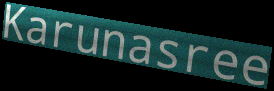
Karunasree